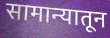
सामान्यातून